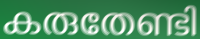
കരുതേണ്ടി